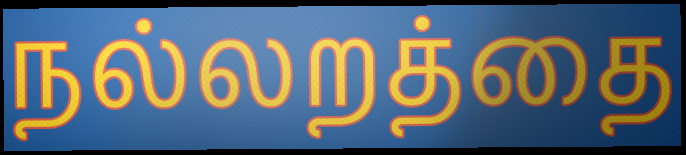
நல்லறத்தை